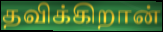
தவிக்கிறான்